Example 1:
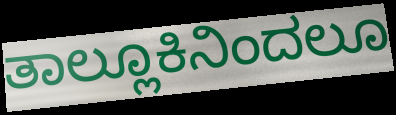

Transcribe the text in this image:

ತಾಲ್ಲೂಕಿನಿಂದಲೂ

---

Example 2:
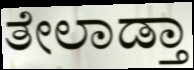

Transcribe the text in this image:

ತೇಲಾಡ್ತಾ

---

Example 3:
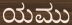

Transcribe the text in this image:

ಯಮು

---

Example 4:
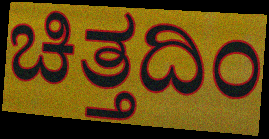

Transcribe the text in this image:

ಚಿತ್ತದಿಂ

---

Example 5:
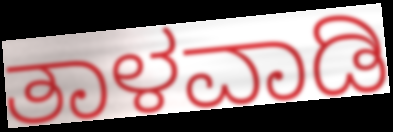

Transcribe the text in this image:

ತಾಳವಾಡಿ